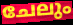
ചേലും